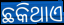
ଛକିଥାଏ